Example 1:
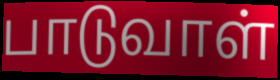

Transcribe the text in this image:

பாடுவாள்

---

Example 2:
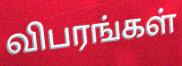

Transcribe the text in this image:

விபரங்கள்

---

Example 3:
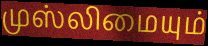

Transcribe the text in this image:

முஸ்லிமையும்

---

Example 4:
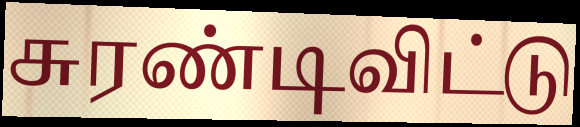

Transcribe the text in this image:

சுரண்டிவிட்டு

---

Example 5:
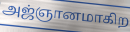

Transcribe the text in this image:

அஜ்ஞானமாகிற